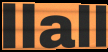
llall